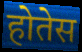
होतेस